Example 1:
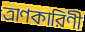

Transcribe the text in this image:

ত্রাণকারিণী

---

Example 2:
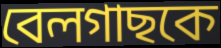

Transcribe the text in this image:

বেলগাছকে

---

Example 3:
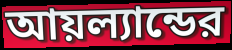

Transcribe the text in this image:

আয়ল্যান্ডের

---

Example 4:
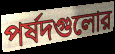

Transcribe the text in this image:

পর্ষদগুলোর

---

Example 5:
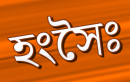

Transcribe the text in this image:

হংসৈঃ